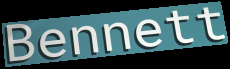
Bennett